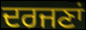
ਦਰਜਣਾਂ